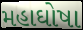
મહાઘોષા